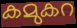
കമുകറ